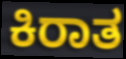
ಕಿರಾತ